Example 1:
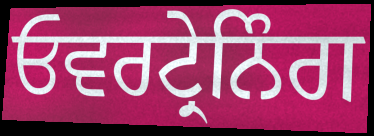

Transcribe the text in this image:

ਓਵਰਟ੍ਰੇਨਿੰਗ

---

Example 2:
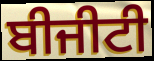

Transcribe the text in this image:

ਬੀਜੀਟੀ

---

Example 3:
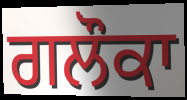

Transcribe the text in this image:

ਗਲੌਕਾ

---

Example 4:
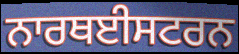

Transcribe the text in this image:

ਨਾਰਥਈਸਟਰਨ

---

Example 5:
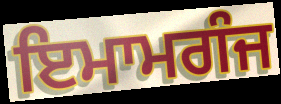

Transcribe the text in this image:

ਇਮਾਮਗੰਜ